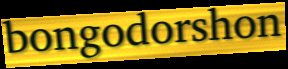
bongodorshon